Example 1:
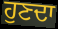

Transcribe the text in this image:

ਹੁਣਦਾ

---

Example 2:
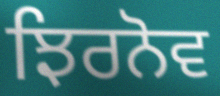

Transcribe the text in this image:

ਝਿਰਨੋਵ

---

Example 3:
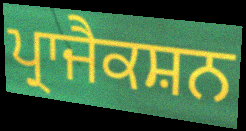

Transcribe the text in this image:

ਪ੍ਰਾਜੈਕਸ਼ਨ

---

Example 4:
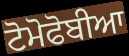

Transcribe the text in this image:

ਟੋਮੋਫੋਬੀਆ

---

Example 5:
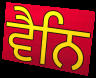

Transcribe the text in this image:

ਵੈਨਿ